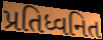
પ્રતિધ્વનિત